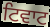
ਟਿਵਾਟ